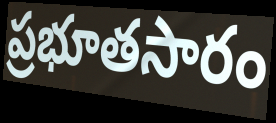
ప్రభూతసారం